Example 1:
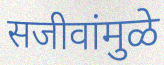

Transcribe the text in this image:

सजीवांमुळे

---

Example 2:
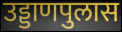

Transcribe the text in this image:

उड्डाणपुलास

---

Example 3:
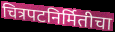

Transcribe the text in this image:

चित्रपटनिर्मितीचा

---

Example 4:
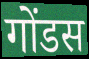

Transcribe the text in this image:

गोंडस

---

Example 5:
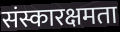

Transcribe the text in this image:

संस्कारक्षमता